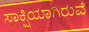
ಸಾಕ್ಷಿಯಾಗಿರುವೆ